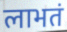
लाभतं